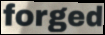
forged